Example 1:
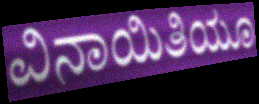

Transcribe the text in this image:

ವಿನಾಯಿತಿಯೂ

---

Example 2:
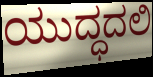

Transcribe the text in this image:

ಯುದ್ಧದಲಿ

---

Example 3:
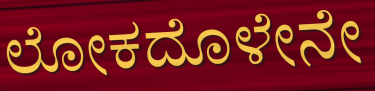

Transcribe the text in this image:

ಲೋಕದೊಳೇನೇ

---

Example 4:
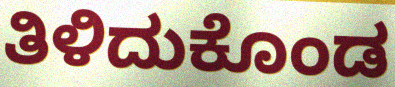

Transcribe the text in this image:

ತಿಳಿದುಕೊಂಡ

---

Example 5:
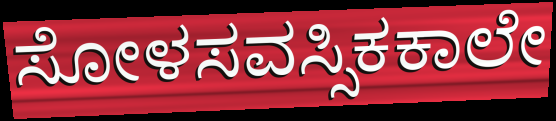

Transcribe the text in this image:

ಸೋಳಸವಸ್ಸಿಕಕಾಲೇ